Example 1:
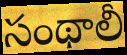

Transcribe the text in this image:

సంథాలీ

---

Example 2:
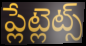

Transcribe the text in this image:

ప్లేట్లెట్స్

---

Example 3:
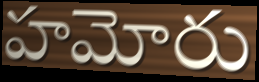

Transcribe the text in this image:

హమోరు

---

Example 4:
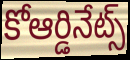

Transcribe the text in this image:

కోఆర్డినేట్స్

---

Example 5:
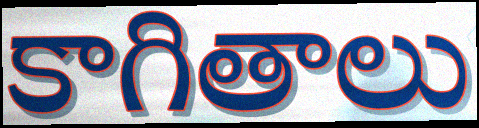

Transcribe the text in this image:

కాగితాలు